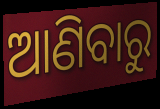
ଆଣିବାରୁ